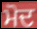
ਮੋਦ